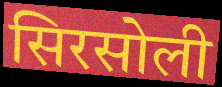
सिरसोली